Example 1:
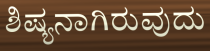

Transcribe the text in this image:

ಶಿಷ್ಯನಾಗಿರುವುದು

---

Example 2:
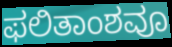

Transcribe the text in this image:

ಫಲಿತಾಂಶವೂ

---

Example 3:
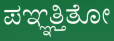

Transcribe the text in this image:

ಪಞ್ಞತ್ತಿತೋ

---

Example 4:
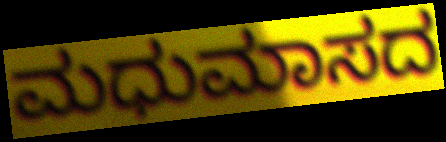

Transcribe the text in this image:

ಮಧುಮಾಸದ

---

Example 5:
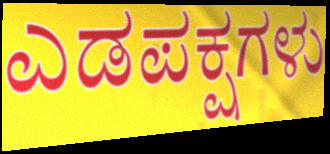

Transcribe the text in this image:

ಎಡಪಕ್ಷಗಳು